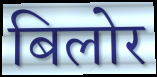
बिलोर